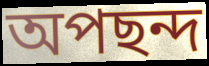
অপছন্দ